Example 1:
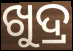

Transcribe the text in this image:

ଖୁଦ୍ର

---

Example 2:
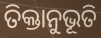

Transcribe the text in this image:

ତିକ୍ତାନୁଭୂତି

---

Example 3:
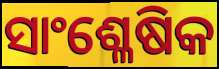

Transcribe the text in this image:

ସାଂଶ୍ଳେଷିକ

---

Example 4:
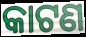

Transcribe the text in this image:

କାଟଣ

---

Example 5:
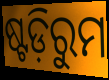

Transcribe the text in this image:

ଷ୍ଟଡ଼ିରୁମ